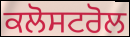
ਕਲੋਸਟਰੋਲ